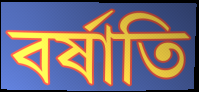
বর্ষাতি